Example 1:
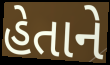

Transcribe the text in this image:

હેતાને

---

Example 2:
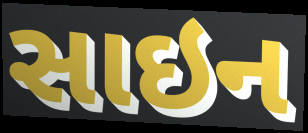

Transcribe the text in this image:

સાઇન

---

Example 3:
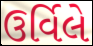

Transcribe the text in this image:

ઉર્વિલે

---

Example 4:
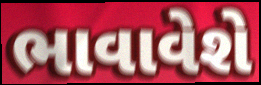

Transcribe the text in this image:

ભાવાવેશે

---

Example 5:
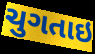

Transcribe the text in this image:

ચુગતાઇ